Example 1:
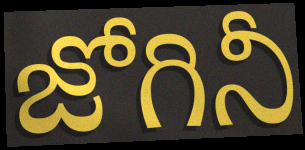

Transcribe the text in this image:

జోగినీ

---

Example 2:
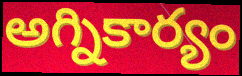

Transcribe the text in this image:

అగ్నికార్యం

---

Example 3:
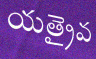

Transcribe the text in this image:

యత్రైవ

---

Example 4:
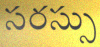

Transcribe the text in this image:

సరస్సు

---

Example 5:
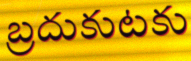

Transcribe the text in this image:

బ్రదుకుటకు